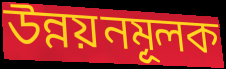
উন্নয়নমূলক